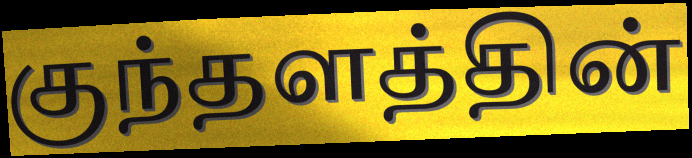
குந்தளத்தின்